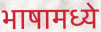
भाषामध्ये